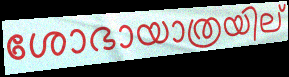
ശോഭായാത്രയില്